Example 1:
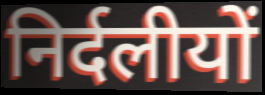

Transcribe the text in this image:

निर्दलीयों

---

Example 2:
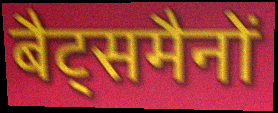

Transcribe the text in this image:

बैट्समैनों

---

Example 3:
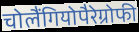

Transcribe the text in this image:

चोलैंगियोपैरेग्रोफी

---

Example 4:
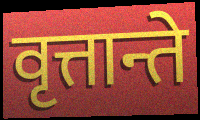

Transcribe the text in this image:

वृत्तान्ते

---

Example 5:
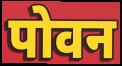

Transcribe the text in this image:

पोवन